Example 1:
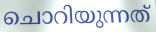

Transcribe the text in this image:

ചൊറിയുന്നത്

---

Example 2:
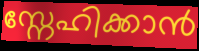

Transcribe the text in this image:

സ്നേഹിക്കാൻ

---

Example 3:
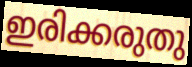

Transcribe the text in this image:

ഇരിക്കരുതു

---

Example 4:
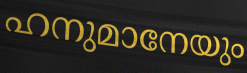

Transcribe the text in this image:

ഹനുമാനേയും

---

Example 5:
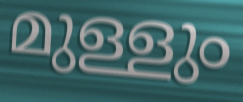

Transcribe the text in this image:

മുള്ളും